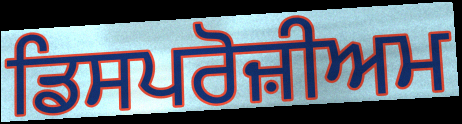
ਡਿਸਪਰੋਜ਼ੀਅਮ